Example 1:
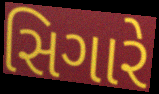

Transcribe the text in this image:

સિગારે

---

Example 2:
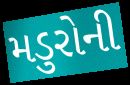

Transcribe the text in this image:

મડુરોની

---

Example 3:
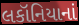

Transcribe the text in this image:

લકૉનિયાનાં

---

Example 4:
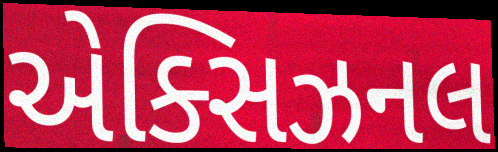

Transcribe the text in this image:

એક્સિઝનલ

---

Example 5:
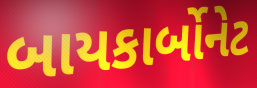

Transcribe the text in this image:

બાયકાર્બોનેટ